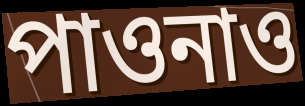
পাওনাও